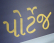
પોર્ટેજ